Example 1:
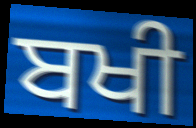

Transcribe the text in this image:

ਬਖੀ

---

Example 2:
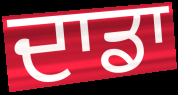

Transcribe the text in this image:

ਦਾਡਾ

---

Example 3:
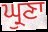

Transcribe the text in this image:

ਘ੍ਰੁਣਾ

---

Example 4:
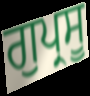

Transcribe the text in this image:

ਗੁਪ੍ਰਸੂ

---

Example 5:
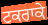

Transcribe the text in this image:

ਟਕਰਾਕੇ